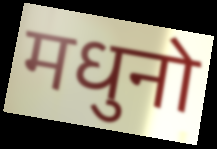
मधुनो